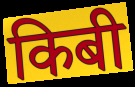
किबी